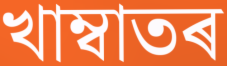
খাম্বাতৰ